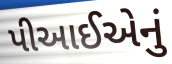
પીઆઈએનું